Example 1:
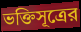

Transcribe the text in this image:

ভক্তিসূত্রের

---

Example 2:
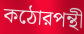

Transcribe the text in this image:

কঠোরপন্থী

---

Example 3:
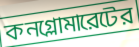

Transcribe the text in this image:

কনগ্লোমারেটের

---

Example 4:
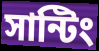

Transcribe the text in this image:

সান্টিং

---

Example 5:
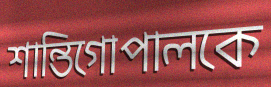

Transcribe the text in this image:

শান্তিগোপালকে